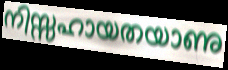
നിസ്സഹായതയാണു